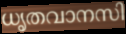
ധൃതവാനസി